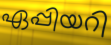
ഏപ്പിയറി